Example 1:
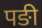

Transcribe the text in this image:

पङी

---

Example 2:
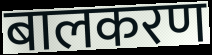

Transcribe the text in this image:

बालकरण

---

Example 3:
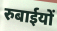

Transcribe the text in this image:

रुबाईयों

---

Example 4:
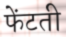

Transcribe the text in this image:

फेंटती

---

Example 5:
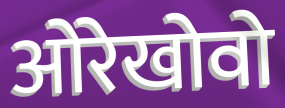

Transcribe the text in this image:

ओरेखोवो